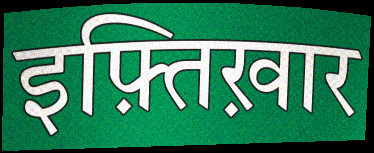
इफ़्तिख़ार